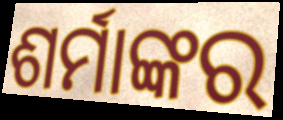
ଶର୍ମାଙ୍କର